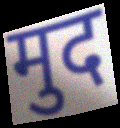
मुद